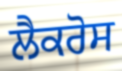
ਲੈਕਰੋਸ